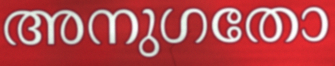
അനുഗതോ